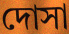
দোসা